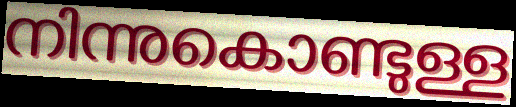
നിന്നുകൊണ്ടുള്ള